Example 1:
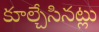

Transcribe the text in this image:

కూల్చేసినట్లు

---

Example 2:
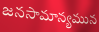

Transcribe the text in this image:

జనసామాన్యమున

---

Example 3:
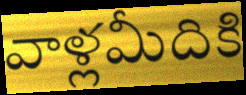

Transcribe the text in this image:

వాళ్లమీదికి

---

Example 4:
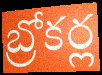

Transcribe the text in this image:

బ్రోకర్ల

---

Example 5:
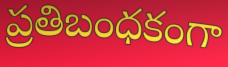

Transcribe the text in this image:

ప్రతిబంధకంగా